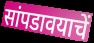
सांपडावयाचें